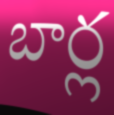
బార్ల